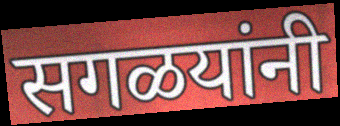
सगळयांनी